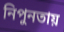
নিপুনতায়